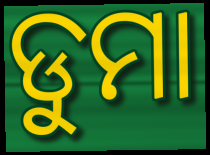
ଡୁମା